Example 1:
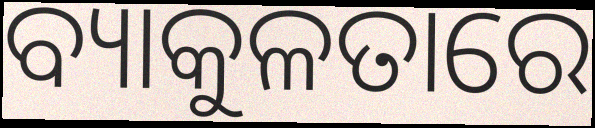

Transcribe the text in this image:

ବ୍ୟାକୁଳତାରେ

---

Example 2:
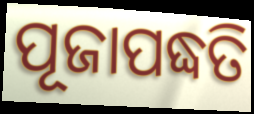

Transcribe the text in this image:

ପୂଜାପଦ୍ଧତି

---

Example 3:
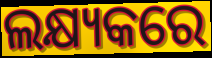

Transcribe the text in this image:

ଲକ୍ଷ୍ୟକରେ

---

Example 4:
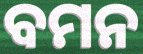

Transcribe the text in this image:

ବମନ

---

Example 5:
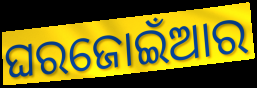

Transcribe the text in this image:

ଘରଜୋଇଁଆର